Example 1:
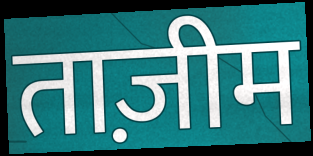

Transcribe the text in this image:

ताज़ीम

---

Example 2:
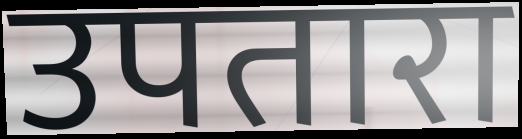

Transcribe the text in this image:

उपतारा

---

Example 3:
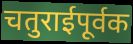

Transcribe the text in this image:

चतुराईपूर्वक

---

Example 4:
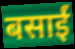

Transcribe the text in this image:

बसाईं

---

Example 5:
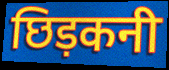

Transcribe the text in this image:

छिड़कनी